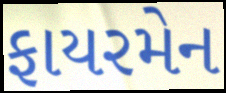
ફાયરમેન